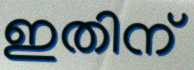
ഇതിന്